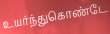
உயர்ந்துகொண்டே